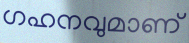
ഗഹനവുമാണ്